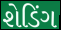
શેડિંગ